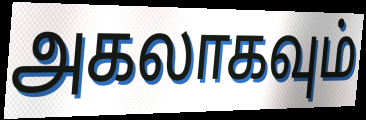
அகலாகவும்